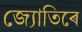
জ্যোতিৰে